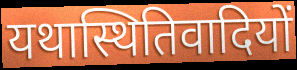
यथास्थितिवादियों